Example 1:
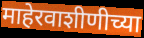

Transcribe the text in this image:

माहेरवाशीणीच्या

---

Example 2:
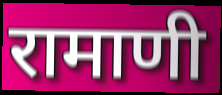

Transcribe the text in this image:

रामाणी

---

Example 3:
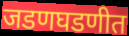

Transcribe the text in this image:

जडणघडणीत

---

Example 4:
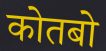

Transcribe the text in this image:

कोतबो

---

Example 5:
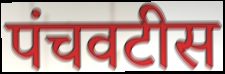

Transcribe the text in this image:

पंचवटीस